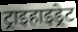
ट्राइहाइड्रेट